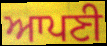
ਆਪਣੀ